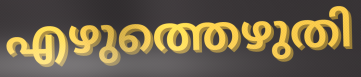
എഴുത്തെഴുതി